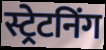
स्ट्रेटनिंग